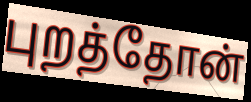
புறத்தோன்